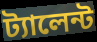
ট্যালেন্ট